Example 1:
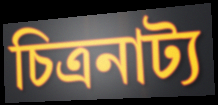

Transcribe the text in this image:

চিত্ৰনাট্য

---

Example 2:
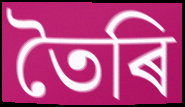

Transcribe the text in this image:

তৈৰি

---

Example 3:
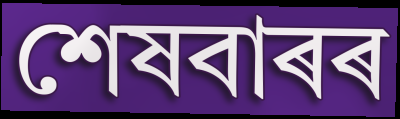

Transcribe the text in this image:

শেষবাৰৰ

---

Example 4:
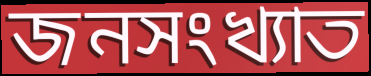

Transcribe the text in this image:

জনসংখ্যাত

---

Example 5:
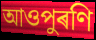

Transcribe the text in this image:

আওপুৰণি